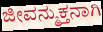
ಜೀವನ್ಮುಕ್ತನಾಗಿ